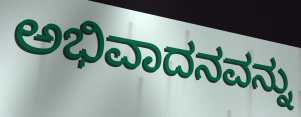
ಅಭಿವಾದನವನ್ನು